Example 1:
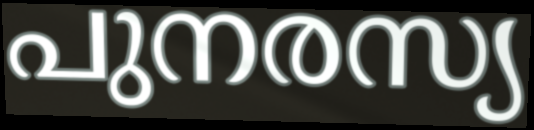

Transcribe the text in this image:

പുനരസ്യ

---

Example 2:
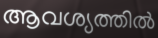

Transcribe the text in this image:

ആവശ്യത്തിൽ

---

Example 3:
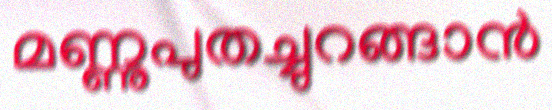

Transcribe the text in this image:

മണ്ണുപുതച്ചുറങ്ങാൻ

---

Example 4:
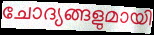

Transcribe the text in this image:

ചോദ്യങ്ങളുമായി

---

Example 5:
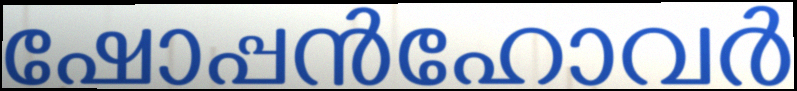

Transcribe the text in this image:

ഷോപ്പൻഹോവർ